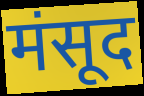
मंसूद